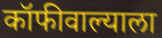
कॉफीवाल्याला